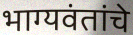
भाग्यवंतांचे